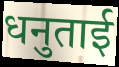
धनुताई